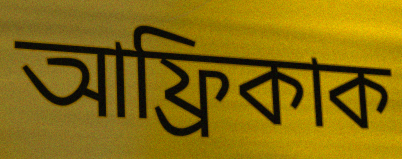
আফ্ৰিকাক